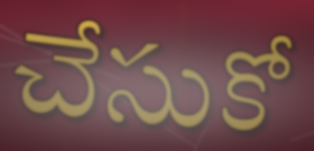
చేసుకో